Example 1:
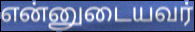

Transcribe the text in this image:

என்னுடையவர்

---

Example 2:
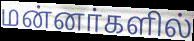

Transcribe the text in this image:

மன்னர்களில்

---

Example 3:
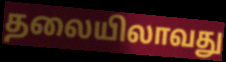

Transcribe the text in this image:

தலையிலாவது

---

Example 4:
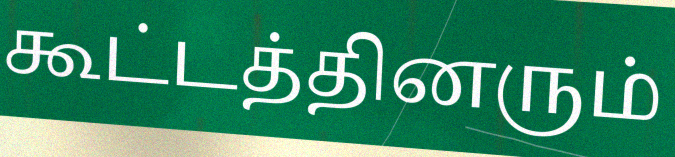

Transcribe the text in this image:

கூட்டத்தினரும்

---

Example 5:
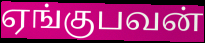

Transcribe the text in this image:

ஏங்குபவன்